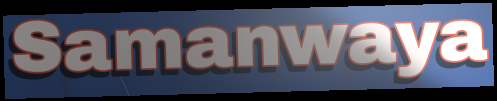
Samanwaya